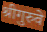
श्रीगुरुवे